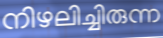
നിഴലിച്ചിരുന്ന